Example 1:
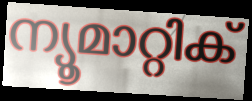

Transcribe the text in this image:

ന്യൂമാറ്റിക്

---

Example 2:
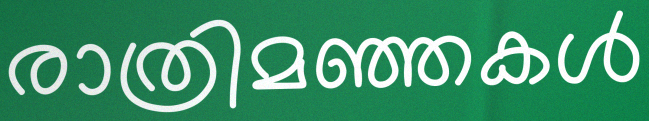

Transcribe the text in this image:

രാത്രിമഞ്ഞകൾ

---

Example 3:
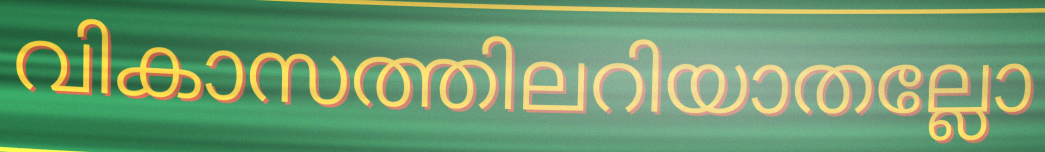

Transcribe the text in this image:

വികാസത്തിലറിയാതല്ലോ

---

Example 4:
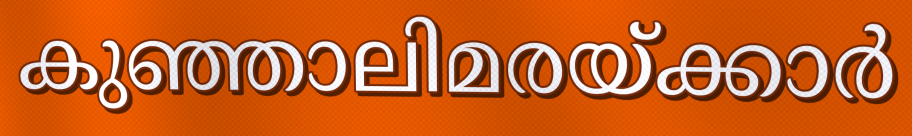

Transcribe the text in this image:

കുഞ്ഞാലിമരയ്ക്കാർ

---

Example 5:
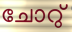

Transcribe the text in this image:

ചോറു്